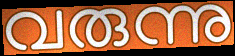
വരുന്നു